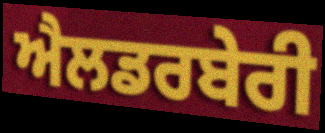
ਐਲਡਰਬੇਰੀ